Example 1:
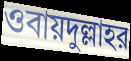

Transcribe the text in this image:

ওবায়দুল্লাহর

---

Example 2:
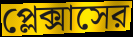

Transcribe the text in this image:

প্লেক্সাসের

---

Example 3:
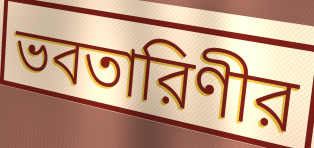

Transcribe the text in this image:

ভবতারিণীর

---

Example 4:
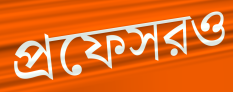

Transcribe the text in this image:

প্রফেসরও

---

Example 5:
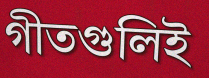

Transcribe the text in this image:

গীতগুলিই